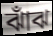
ঝাঁঝ